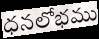
ధనలోభము